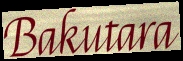
Bakutara